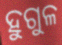
ହୁଗୁଳ